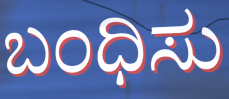
ಬಂಧಿಸು